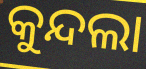
କୁନ୍ଦଲା